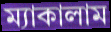
ম্যাকালাম